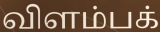
விளம்பக்